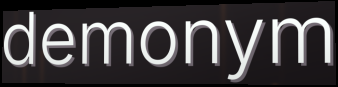
demonym